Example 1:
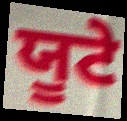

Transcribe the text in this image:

ਯੂਟੇ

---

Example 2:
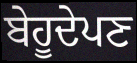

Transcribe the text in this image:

ਬੇਹੂਦੇਪਣ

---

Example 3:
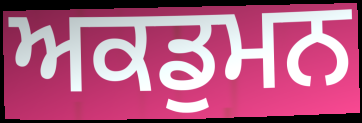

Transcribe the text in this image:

ਅਕਡੁਮਨ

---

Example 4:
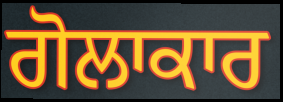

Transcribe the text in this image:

ਗੋਲਾਕਾਰ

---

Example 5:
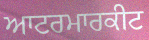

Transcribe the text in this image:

ਆਟਰਮਾਰਕੀਟ